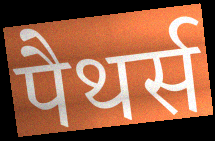
पैथर्स